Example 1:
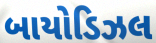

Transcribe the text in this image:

બાયોડિઝલ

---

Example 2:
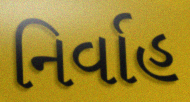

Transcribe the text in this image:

નિર્વાહ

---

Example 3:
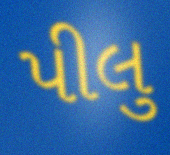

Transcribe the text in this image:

પીલુ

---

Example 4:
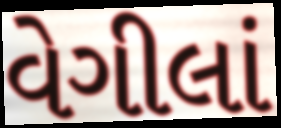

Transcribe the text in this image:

વેગીલાં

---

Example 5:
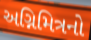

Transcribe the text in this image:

અગ્નિમિત્રનો